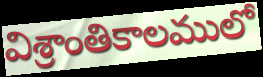
విశ్రాంతికాలములో